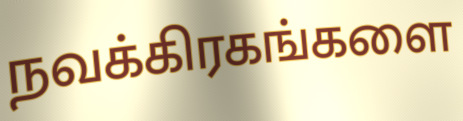
நவக்கிரகங்களை